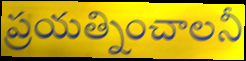
ప్రయత్నించాలనీ